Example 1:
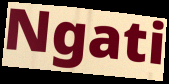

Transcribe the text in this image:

Ngati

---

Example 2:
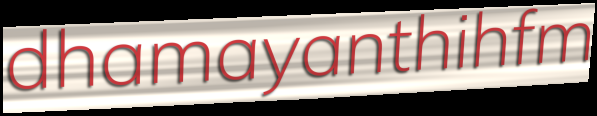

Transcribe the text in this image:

dhamayanthihfm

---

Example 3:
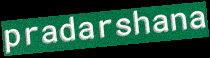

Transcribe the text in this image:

pradarshana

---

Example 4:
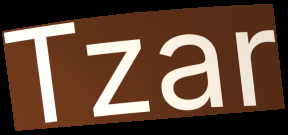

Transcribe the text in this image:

Tzar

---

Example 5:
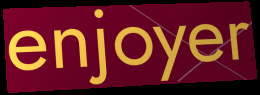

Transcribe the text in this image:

enjoyer